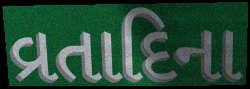
વ્રતાદિના